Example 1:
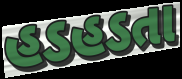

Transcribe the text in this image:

હડહડતા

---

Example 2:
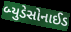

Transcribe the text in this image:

બ્યુડેસોનાઈડ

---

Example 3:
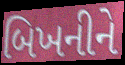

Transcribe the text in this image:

બિખનીને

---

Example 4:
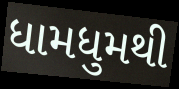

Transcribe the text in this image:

ધામધુમથી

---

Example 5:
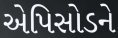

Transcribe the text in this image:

એપિસોડને